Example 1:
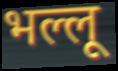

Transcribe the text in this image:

भल्लू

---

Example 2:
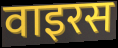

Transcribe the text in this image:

वाइरस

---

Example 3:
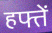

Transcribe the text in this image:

हफ्तें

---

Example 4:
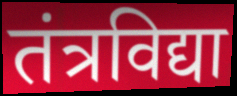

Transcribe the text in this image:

तंत्रविद्या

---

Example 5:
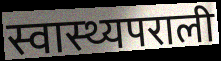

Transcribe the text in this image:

स्वास्थ्यपराली